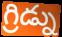
గ్రిడ్ను